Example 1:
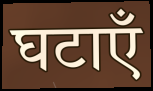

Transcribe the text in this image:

घटाएँ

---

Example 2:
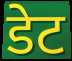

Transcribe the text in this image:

डेट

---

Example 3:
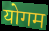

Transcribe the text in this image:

योगम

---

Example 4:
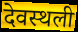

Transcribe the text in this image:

देवस्थली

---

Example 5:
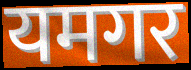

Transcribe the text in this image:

यमगर